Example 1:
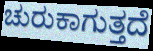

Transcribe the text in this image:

ಚುರುಕಾಗುತ್ತದೆ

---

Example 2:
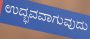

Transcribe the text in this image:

ಉದ್ಭವವಾಗುವುದು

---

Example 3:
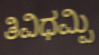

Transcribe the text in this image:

ತಿವಿಧಮ್ಪಿ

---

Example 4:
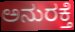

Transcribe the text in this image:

ಅನುರಕ್ತೆ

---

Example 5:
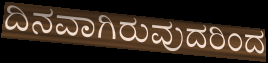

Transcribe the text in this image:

ದಿನವಾಗಿರುವುದರಿಂದ